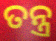
ତନ୍ତ୍ର